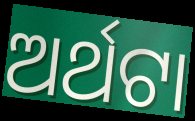
ଅର୍ଥଟା